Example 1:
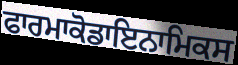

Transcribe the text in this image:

ਫਾਰਮਾਕੋਡਾਇਨਾਮਿਕਸ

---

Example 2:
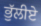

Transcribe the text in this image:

ਭੁੱਲੀਏ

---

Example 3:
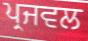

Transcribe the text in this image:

ਪ੍ਰਜਵਲ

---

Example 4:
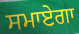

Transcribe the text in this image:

ਸਮਾਏਗਾ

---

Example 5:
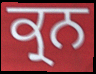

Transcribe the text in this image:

ਕ੍ਰਨ